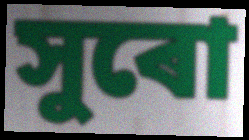
সুৰো